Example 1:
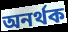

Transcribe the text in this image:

অনৰ্থক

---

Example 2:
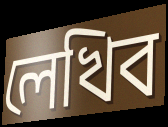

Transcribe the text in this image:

লেখিব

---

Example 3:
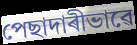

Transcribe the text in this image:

পেছাদাৰীভাৱে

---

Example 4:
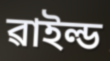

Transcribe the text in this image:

ৱাইল্ড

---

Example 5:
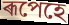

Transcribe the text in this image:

ৰূপেহে